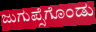
ಜುಗುಪ್ಸೆಗೊಂಡು